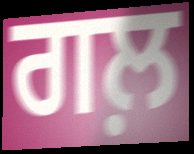
ਗਲ਼